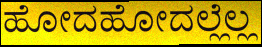
ಹೋದಹೋದಲ್ಲೆಲ್ಲ